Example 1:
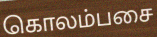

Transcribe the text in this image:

கொலம்பசை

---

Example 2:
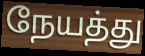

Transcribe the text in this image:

நேயத்து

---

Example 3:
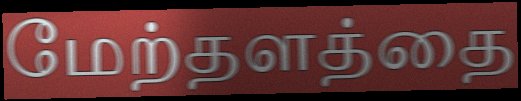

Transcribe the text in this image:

மேற்தளத்தை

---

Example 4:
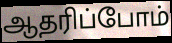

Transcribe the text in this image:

ஆதரிப்போம்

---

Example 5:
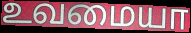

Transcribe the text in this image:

உவமையா